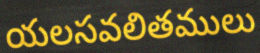
యలసవలితములు